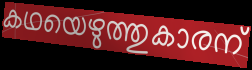
കഥയെഴുത്തുകാരന്